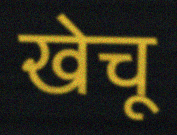
खेचू